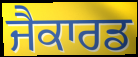
ਜੈਕਾਰਡ